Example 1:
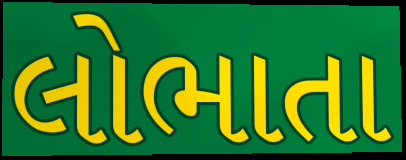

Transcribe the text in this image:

લોભાતા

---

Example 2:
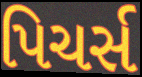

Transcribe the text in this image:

પિચર્સ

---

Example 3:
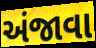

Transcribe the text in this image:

અંજાવા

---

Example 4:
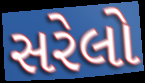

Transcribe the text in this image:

સરેલો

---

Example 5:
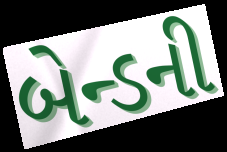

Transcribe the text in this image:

બેન્ડની